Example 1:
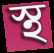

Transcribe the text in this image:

স্থ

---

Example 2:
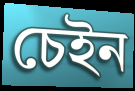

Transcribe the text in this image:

চেইন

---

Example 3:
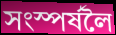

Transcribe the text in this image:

সংস্পৰ্ষলৈ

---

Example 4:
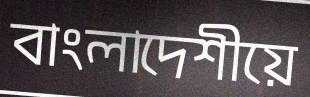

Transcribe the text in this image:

বাংলাদেশীয়ে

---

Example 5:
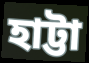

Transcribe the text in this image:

হাট্টা